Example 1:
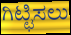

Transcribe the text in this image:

ಗಿಟ್ಟಿಸಲು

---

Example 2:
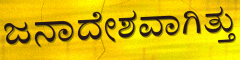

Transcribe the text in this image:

ಜನಾದೇಶವಾಗಿತ್ತು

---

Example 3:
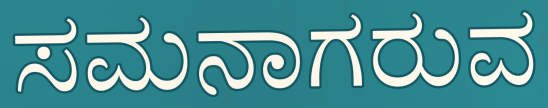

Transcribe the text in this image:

ಸಮನಾಗರುವ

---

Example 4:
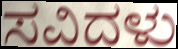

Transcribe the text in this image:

ಸವಿದಳು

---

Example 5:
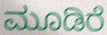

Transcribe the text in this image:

ಮೂಡಿರೆ